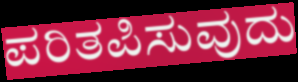
ಪರಿತಪಿಸುವುದು